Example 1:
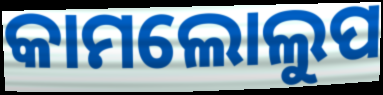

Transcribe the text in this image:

କାମଲୋଲୁପ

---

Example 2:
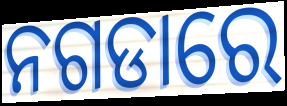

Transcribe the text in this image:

ନଗଡାରେ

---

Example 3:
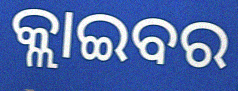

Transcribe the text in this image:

କ୍ଲାଇବର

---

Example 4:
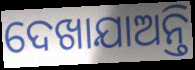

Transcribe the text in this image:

ଦେଖାଯାଅନ୍ତି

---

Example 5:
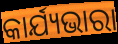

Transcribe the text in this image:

କାର୍ଯ୍ୟଭାରା